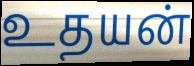
உதயன்